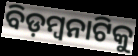
ବିଡ଼ମ୍ବନାଟିକୁ